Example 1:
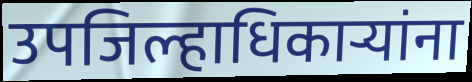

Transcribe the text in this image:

उपजिल्हाधिकाऱ्यांना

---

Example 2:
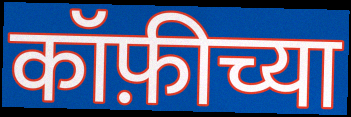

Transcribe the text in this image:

कॉफ़ीच्या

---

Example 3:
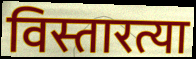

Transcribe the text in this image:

विस्तारत्या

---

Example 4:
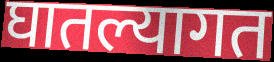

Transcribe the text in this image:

घातल्यागत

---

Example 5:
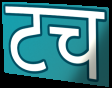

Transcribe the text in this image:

टच